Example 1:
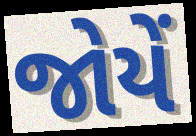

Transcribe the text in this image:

જોયેં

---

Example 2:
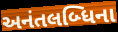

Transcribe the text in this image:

અનંતલબ્ધિના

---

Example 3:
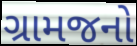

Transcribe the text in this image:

ગ્રામજનો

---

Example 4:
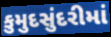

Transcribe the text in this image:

કુમુદસુંદરીમાં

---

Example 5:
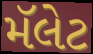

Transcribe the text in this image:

મૅલેટ